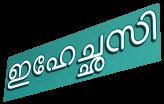
ഇഹേച്ഛസി